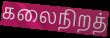
கலைநிறத்